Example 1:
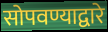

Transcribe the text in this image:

सोपवण्याद्वारे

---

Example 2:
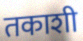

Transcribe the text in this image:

तकाशी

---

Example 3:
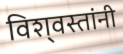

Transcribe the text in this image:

विश्वस्तांनी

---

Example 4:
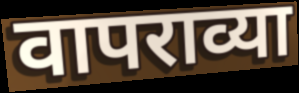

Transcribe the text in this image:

वापराव्या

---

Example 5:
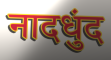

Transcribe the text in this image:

नादधुंद